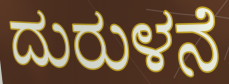
ದುರುಳನೆ